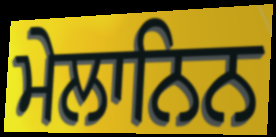
ਮੇਲਾਨਿਨ